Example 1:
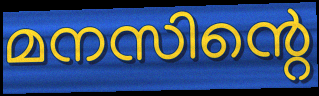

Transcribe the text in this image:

മനസിന്റെ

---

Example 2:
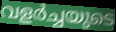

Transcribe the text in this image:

വളർച്ചയുടെ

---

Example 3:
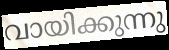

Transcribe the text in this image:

വായിക്കുന്നു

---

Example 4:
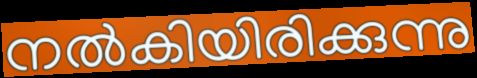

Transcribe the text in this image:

നൽകിയിരിക്കുന്നു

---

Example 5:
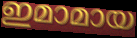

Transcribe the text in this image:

ഇമാമായ